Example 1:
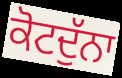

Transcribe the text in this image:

ਕੋਟਦੁੱਨਾ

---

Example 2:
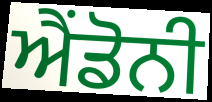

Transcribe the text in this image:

ਐਂਡੋਨੀ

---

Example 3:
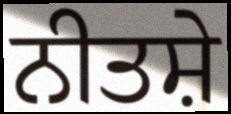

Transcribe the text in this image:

ਨੀਤਸ਼ੇ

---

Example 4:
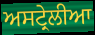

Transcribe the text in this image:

ਅਸਟ੍ਰੇਲੀਆ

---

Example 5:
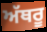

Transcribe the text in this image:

ਅੱਥਰੂ